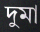
দুমা